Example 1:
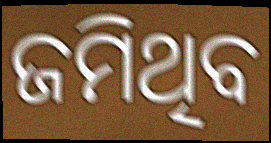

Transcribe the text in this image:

ଜମିଥିବ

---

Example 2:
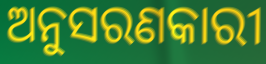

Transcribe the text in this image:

ଅନୁସରଣକାରୀ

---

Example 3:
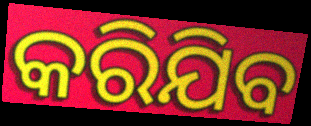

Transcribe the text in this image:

କରିଯିବ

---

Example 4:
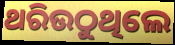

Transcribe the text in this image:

ଥରିଉଠୁଥିଲେ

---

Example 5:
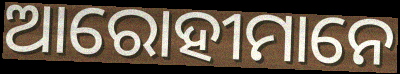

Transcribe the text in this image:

ଆରୋହୀମାନେ